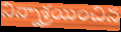
నిన్నాశ్రయించిన